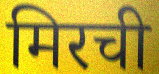
मिरची